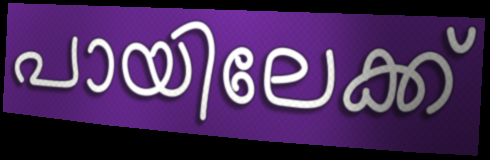
പായിലേക്ക്